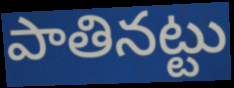
పాతినట్టు